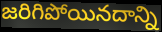
జరిగిపోయినదాన్ని